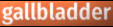
gallbladder